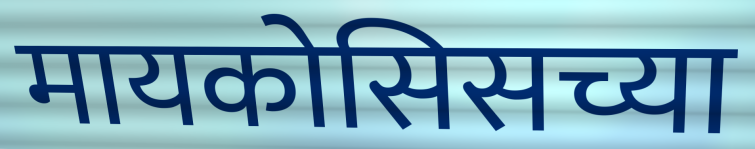
मायकोसिसच्या